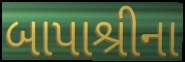
બાપાશ્રીના